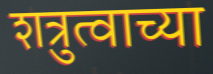
शत्रुत्वाच्या